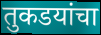
तुकडयांचा